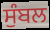
ਸੁੰਬਲ